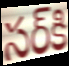
సర్‌కి